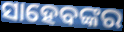
ସାହେବଙ୍କର